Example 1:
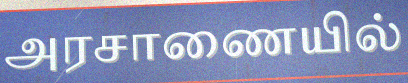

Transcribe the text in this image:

அரசாணையில்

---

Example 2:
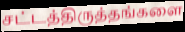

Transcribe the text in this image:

சட்டத்திருத்தங்களை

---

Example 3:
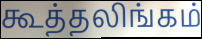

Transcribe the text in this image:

கூத்தலிங்கம்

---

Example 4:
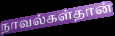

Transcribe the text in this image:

நாவல்கள்தான்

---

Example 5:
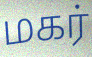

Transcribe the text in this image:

மகர்